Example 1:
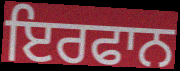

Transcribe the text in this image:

ਇਰਫਾਨ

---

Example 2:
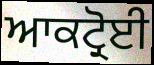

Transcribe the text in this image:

ਆਕਟ੍ਰੋਈ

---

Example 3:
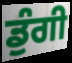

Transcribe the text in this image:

ਡੁੰਗੀ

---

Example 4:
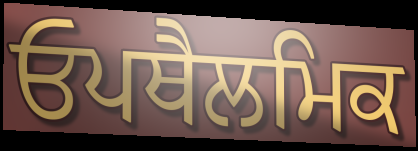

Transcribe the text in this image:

ਓਪਥੈਲਮਿਕ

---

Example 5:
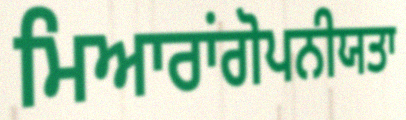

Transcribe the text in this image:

ਮਿਆਰਾਂਗੋਪਨੀਯਤਾ